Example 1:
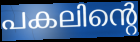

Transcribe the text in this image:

പകലിന്റെ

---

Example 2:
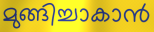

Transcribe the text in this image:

മുങ്ങിച്ചാകാൻ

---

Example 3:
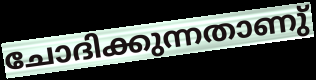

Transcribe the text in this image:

ചോദിക്കുന്നതാണു്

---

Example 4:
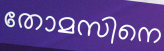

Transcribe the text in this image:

തോമസിനെ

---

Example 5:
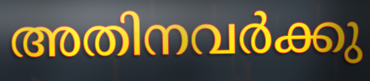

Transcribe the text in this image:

അതിനവർക്കു